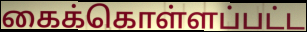
கைக்கொள்ளப்பட்ட